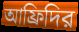
আফ্রিদির